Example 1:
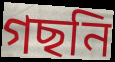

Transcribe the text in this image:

গছনি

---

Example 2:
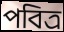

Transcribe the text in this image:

পবিত্ৰ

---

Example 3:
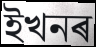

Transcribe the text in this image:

ইখনৰ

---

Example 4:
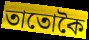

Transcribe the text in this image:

তাতোকৈ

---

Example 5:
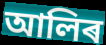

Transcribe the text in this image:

আলিৰ